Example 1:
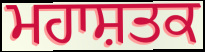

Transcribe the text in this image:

ਮਹਾਸ਼ਤਕ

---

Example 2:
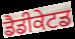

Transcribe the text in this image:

ਡੈਡੀਕੇਟਡ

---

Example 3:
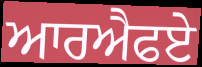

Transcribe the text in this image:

ਆਰਐਫਏ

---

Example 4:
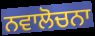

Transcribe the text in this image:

ਨਵਾਲੋਚਨਾ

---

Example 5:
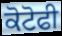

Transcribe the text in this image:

ਕੋਟੋਫੀ